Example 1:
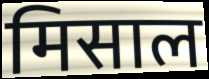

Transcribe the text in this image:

मिसाल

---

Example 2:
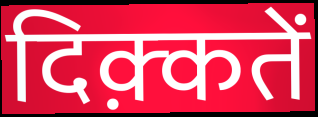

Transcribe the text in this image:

दिक़्कतें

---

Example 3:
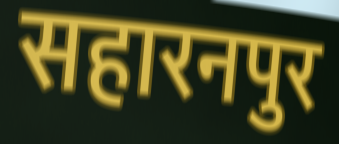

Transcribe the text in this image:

सहारनपुर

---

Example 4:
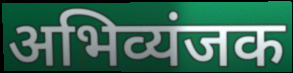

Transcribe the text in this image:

अभिव्यंजक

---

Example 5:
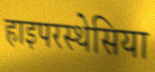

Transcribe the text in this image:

हाइपरस्थेसिया